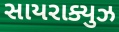
સાયરાક્યુઝ